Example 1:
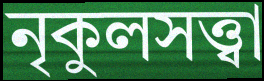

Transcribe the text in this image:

নৃকুলসত্ত্বা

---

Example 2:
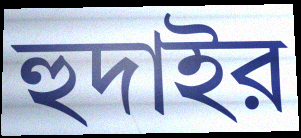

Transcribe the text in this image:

হুদাইর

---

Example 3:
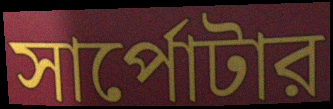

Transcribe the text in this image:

সার্পোটার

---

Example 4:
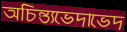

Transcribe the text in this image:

অচিন্ত্যভেদাভেদ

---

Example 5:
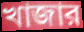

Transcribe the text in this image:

খাজার